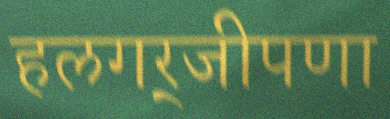
हलगर्जीपणा